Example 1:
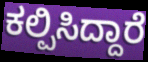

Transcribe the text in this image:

ಕಲ್ಪಿಸಿದ್ದಾರೆ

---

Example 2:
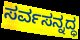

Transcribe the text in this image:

ಸರ್ವಸನ್ನದ್ಧ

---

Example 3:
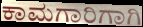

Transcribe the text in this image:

ಕಾಮಗಾರಿಗಾಗಿ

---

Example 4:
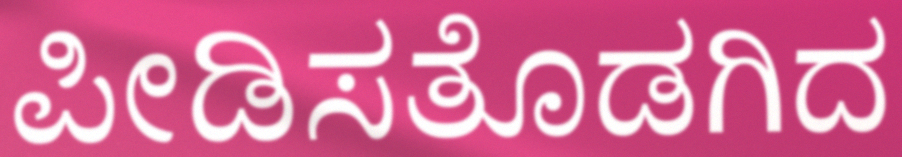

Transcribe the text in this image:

ಪೀಡಿಸತೊಡಗಿದ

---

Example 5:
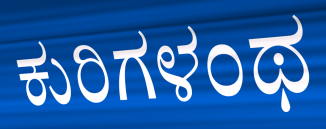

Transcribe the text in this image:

ಕುರಿಗಳಂಥ